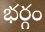
భర్గం